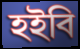
হইবি